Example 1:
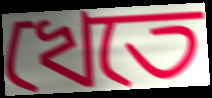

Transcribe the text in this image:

খেতে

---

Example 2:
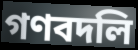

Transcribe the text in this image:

গণবদলি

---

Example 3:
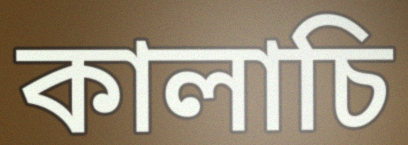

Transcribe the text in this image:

কালাচি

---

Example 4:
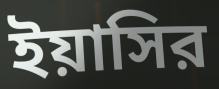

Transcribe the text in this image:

ইয়াসির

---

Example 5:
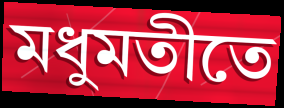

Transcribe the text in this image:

মধুমতীতে